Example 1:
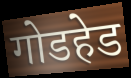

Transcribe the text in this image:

गोडहेड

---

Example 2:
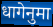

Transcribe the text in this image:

धागेनुमा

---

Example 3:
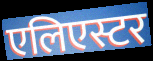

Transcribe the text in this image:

एलिएस्टर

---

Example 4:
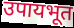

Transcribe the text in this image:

उपायभूत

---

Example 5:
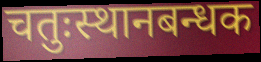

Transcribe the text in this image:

चतुःस्थानबन्धक